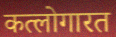
कत्लोगारत